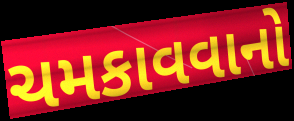
ચમકાવવાનો